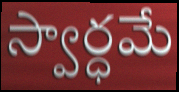
స్వార్ధమే